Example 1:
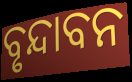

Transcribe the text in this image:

ବୃନ୍ଦାବନ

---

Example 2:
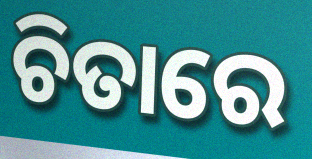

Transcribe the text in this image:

ଚିତାରେ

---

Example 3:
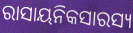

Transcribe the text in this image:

ରାସାୟନିକସାରସ୍ୟ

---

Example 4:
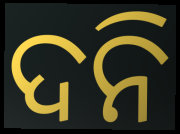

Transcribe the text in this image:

ଦନି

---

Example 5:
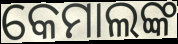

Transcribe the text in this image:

କେମାଲଙ୍କ